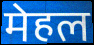
मेहल